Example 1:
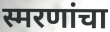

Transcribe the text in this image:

स्मरणांचा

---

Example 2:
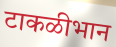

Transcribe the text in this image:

टाकळीभान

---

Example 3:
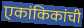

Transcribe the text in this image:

एकांकिकांची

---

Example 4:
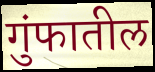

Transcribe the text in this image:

गुंफातील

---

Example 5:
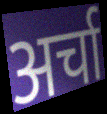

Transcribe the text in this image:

अर्चा